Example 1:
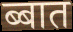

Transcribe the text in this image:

ब्बात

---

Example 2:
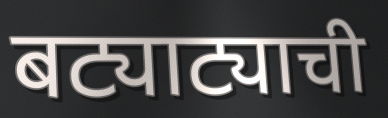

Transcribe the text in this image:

बट्याट्याची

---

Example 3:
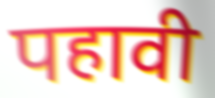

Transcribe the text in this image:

पहावी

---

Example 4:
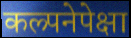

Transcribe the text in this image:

कल्पनेपेक्षा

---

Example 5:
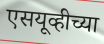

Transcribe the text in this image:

एसयूव्हीच्या